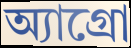
অ্যাগ্রো